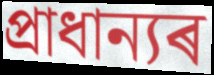
প্ৰাধান্যৰ